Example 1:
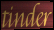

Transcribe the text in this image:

tinder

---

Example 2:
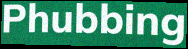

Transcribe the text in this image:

Phubbing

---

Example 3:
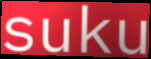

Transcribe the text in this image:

suku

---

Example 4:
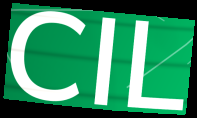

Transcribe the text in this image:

CIL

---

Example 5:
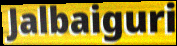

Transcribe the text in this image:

Jalbaiguri